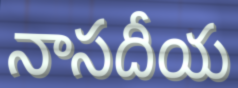
నాసదీయ